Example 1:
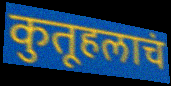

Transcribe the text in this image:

कुतूहलाचं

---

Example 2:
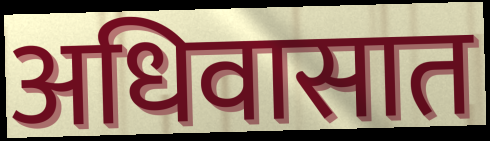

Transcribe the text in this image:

अधिवासात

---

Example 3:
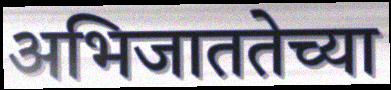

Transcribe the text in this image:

अभिजाततेच्या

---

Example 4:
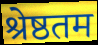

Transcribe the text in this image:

श्रेष्ठतम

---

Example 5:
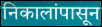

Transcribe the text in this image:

निकालांपासून